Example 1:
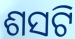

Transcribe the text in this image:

ଶସଟି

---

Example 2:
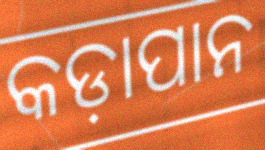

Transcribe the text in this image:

କଡ଼ାପାନ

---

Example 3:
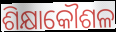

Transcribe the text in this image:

ଶିକ୍ଷାକୌଶଳ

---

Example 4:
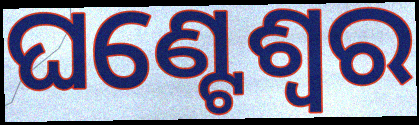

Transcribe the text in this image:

ଘଣ୍ଟେଶ୍ୱର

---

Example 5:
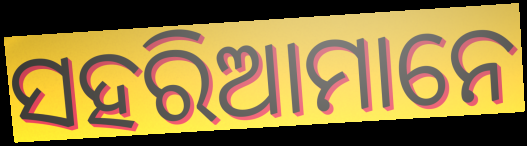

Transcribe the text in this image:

ସହରିଆମାନେ